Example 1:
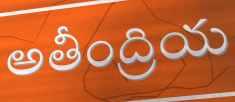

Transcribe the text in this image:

అతీంద్రియ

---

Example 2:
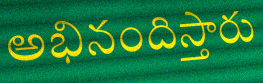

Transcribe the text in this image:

అభినందిస్తారు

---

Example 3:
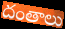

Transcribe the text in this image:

దంతాలు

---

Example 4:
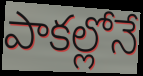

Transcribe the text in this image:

పాకల్లోనే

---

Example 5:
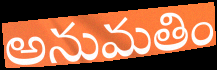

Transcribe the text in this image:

అనుమతిం